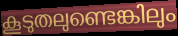
കൂടുതലുണ്ടെങ്കിലും